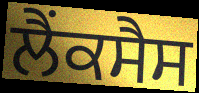
ਲੈਂਕਸੈਸ